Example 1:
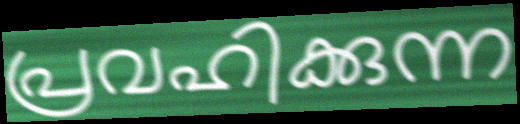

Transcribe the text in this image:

പ്രവഹിക്കുന്ന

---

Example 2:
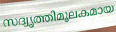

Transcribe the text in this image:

സദ്വൃത്തിമൂലകമായ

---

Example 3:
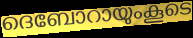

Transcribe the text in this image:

ദെബോറായുംകൂടെ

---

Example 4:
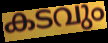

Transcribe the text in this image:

കടവും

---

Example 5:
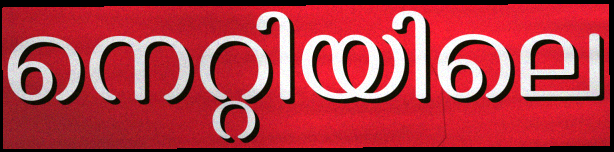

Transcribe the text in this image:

നെറ്റിയിലെ